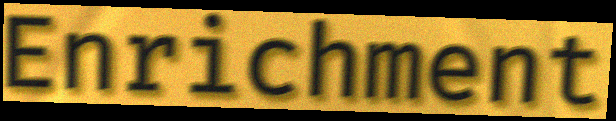
Enrichment